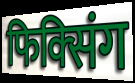
फिक्‍सिंग